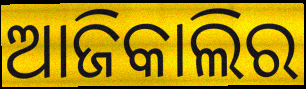
ଆଜିକାଲିର